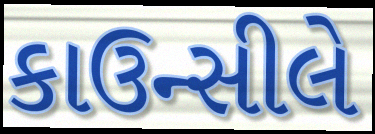
કાઉન્સીલે